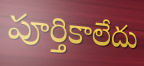
పూర్తికాలేదు